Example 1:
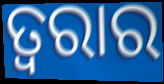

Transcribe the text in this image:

ତ୍ୱରାର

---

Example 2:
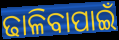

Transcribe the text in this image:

ଢାଳିବାପାଇଁ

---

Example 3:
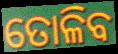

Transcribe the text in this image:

ତୋଳିବ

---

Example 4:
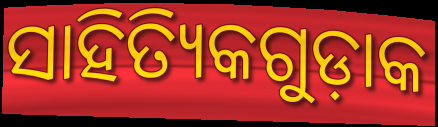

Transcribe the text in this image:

ସାହିତ୍ୟିକଗୁଡ଼ାକ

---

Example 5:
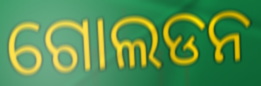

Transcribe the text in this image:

ଗୋଲଡନ